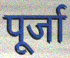
पूर्जा